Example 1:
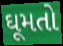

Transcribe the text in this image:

ઘૂમતો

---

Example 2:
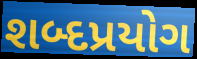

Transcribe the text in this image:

શબ્દપ્રયોગ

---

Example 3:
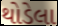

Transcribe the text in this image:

થોડેલા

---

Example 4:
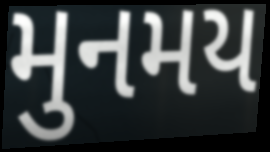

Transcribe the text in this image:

મુનમય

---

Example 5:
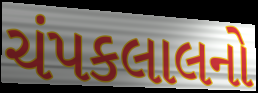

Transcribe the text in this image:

ચંપકલાલનો